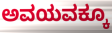
ಅವಯವಕ್ಕೂ